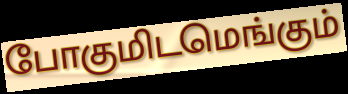
போகுமிடமெங்கும்